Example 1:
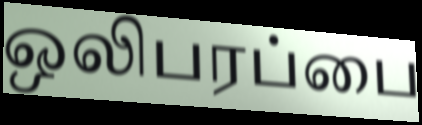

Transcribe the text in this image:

ஒலிபரப்பை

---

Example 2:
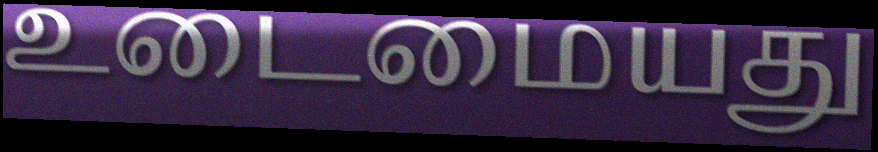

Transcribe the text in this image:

உடைமையது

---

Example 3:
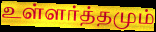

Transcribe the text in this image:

உள்ளர்த்தமும்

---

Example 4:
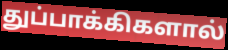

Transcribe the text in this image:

துப்பாக்கிகளால்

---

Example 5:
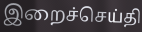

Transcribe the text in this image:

இறைச்செய்தி